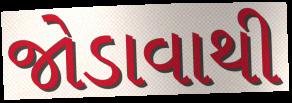
જોડાવાથી